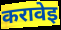
करावेइ